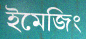
ইমেজিং